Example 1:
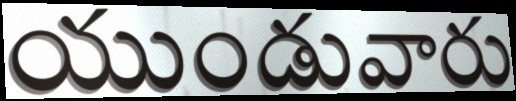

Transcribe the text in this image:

యుండువారు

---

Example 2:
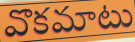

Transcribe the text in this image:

వొకమాటు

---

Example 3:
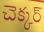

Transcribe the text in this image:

చెక్కర్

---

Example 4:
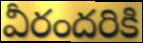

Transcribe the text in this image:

వీరందరికి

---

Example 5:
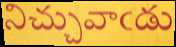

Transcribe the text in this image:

నిచ్చువాఁడు